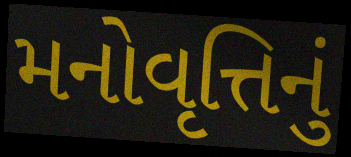
મનોવૃત્તિનું